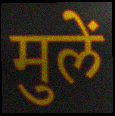
मुलें